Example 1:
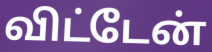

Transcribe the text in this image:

விட்டேன்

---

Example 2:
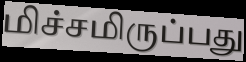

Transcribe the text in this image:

மிச்சமிருப்பது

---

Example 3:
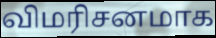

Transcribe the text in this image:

விமரிசனமாக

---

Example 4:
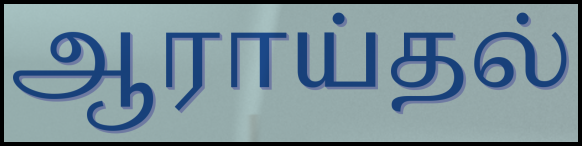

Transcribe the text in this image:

ஆராய்தல்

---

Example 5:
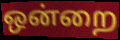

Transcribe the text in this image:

ஒன்றை